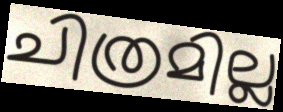
ചിത്രമില്ല